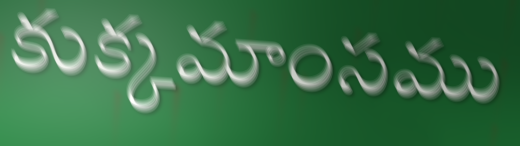
కుక్కమాంసము